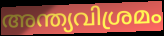
അന്ത്യവിശ്രമം